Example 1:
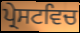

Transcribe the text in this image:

ਪ੍ਰੇਸਟਵਿਚ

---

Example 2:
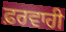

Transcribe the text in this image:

ਫ਼ਰਵਾਹੀ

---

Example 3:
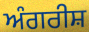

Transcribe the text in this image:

ਅੰਗਰੀਸ਼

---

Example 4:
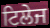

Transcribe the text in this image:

ਟਿਲੇਜ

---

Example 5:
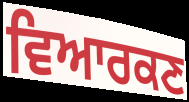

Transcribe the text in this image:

ਵਿਆਰਕਣ